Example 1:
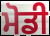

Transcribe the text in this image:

ਮੋਡੀ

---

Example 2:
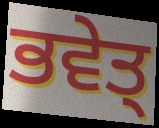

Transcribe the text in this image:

ਭਵੇਤ੍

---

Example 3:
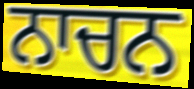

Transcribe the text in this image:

ਨਾਚਨ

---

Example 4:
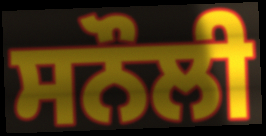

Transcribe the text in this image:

ਸਨੌਲੀ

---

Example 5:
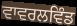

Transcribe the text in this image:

ਵਾਵਰਲਵਿੰਡ